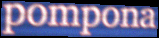
pompona